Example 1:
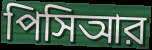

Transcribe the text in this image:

পিসিআর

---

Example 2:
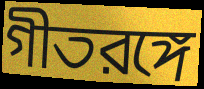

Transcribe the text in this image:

গীতরঙ্গে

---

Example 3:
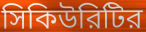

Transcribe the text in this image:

সিকিউরিটির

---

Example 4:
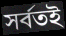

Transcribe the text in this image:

সর্বতই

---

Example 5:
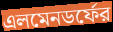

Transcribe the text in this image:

এলমেনডর্ফের